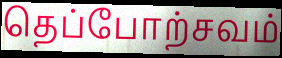
தெப்போற்சவம்